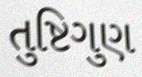
તુષ્ટિગુણ